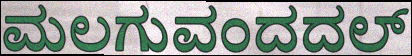
ಮಲಗುವಂದದಲ್